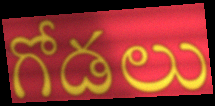
గోడలు